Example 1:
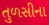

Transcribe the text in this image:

તુળસીના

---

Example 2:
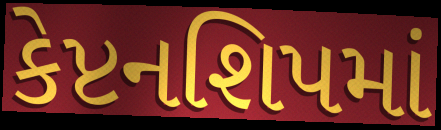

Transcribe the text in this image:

કેપ્ટનશિપમાં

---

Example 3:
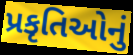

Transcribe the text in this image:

પ્રકૃતિઓનું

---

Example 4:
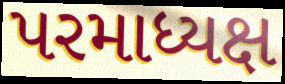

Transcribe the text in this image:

પરમાધ્યક્ષ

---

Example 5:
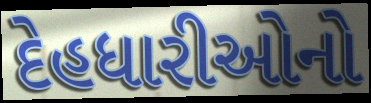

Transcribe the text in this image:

દેહધારીઓનો